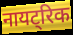
नायट्रिक